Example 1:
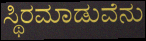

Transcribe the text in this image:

ಸ್ಥಿರಮಾಡುವೆನು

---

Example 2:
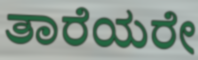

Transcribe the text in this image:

ತಾರೆಯರೇ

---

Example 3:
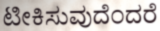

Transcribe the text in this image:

ಟೀಕಿಸುವುದೆಂದರೆ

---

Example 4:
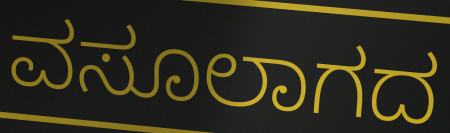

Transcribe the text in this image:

ವಸೂಲಾಗದ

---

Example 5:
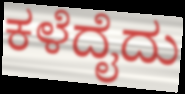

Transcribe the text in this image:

ಕಳೆದೈದು